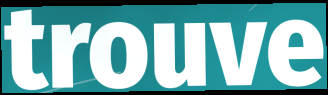
trouve